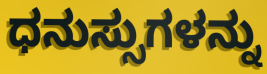
ಧನುಸ್ಸುಗಳನ್ನು